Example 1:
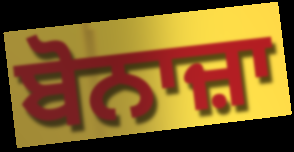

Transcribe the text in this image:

ਬੋਨਾਜ਼ਾ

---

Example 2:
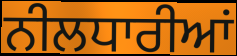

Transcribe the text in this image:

ਨੀਲਧਾਰੀਆਂ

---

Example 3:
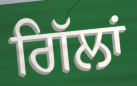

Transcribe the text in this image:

ਗਿੱਲਾਂ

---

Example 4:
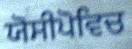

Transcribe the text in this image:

ਯੋਸੀਪੋਵਿਚ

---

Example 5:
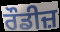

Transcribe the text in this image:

ਰੌਡੀਜ਼